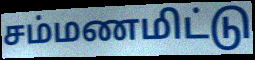
சம்மணமிட்டு